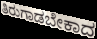
ತಿರುಗಾಡಬೇಕಾದ